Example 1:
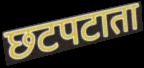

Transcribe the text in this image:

छटपटाता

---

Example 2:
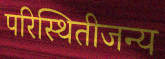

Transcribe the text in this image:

परिस्थितीजन्य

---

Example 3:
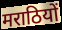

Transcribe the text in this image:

मराठियों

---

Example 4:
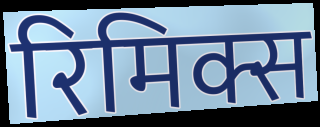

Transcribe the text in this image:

रिमिक्स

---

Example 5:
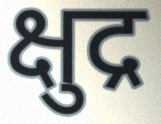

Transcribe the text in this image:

क्षुद्र